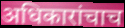
अधिकारांचाच